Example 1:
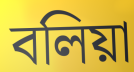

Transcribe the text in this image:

বলিয়া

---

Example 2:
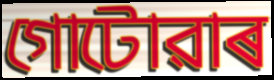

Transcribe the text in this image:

গোটোৱাৰ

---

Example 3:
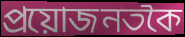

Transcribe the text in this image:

প্ৰয়োজনতকৈ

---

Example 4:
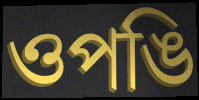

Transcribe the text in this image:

ওপঙি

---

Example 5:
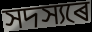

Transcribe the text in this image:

সদস্যৰে